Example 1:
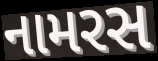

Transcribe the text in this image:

નામરસ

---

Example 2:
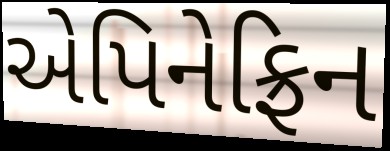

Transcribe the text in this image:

એપિનેફ્રિન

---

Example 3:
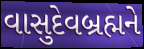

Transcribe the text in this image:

વાસુદેવબ્રહ્મને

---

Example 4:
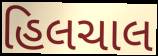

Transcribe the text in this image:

હિલચાલ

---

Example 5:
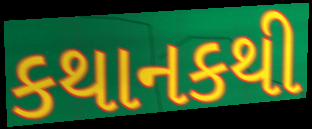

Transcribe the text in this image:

કથાનકથી